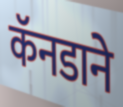
कॅनडाने